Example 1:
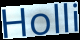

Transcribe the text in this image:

Holli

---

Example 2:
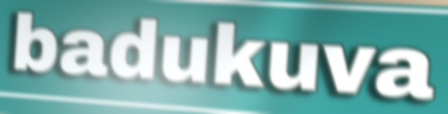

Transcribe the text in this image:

badukuva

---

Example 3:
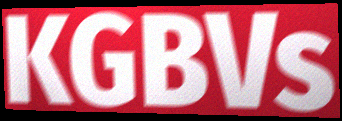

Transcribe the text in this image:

KGBVs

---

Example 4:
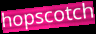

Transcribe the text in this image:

hopscotch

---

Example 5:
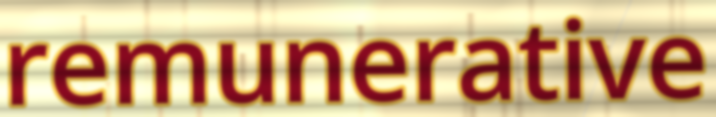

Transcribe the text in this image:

remunerative